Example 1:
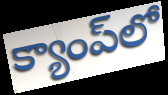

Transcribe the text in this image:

క్యాంప్‌లో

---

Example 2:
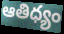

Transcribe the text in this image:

ఆతిధ్యం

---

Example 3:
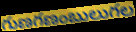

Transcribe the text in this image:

గుణగణంబులుగల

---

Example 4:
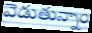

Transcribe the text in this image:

వెడుతున్నాం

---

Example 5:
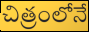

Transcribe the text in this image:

చిత్రంలోనే